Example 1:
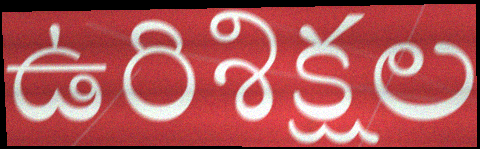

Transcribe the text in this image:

ఉరిశిక్షల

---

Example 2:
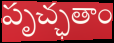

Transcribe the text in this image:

పృచ్ఛతాం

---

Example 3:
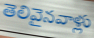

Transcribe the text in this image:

తెలివైనవాళ్లు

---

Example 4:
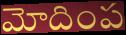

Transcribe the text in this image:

మోదింప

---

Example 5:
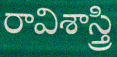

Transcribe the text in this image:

రావిశాస్త్రి